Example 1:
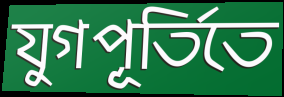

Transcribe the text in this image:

যুগপূর্তিতে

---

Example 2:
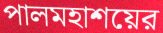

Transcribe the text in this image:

পালমহাশয়ের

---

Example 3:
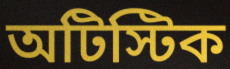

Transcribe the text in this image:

অটিস্টিক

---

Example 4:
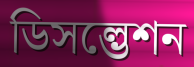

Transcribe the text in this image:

ডিসল্ভেশন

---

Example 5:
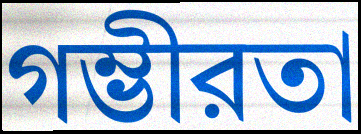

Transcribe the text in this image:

গম্ভীরতা